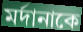
মর্দানাকে